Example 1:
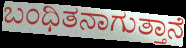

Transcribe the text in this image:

ಬಂಧಿತನಾಗುತ್ತಾನೆ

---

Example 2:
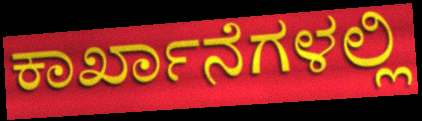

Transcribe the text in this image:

ಕಾರ್ಖಾನೆಗಳಲ್ಲಿ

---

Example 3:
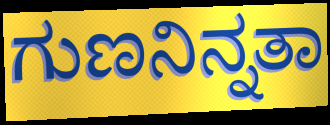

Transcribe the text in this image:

ಗುಣನಿನ್ನತಾ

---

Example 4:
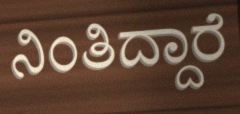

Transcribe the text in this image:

ನಿಂತಿದ್ದಾರೆ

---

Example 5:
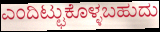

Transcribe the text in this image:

ಎಂದಿಟ್ಟುಕೊಳ್ಳಬಹುದು